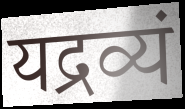
यद्रव्यं